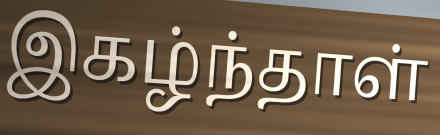
இகழ்ந்தாள்